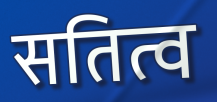
सतित्व